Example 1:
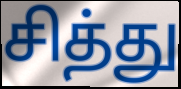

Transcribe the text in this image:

சித்து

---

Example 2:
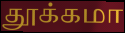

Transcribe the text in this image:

தூக்கமா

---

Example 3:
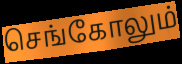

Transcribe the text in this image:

செங்கோலும்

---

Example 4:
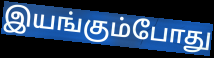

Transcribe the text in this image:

இயங்கும்போது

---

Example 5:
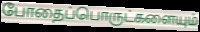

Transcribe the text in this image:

போதைப்பொருட்களையும்